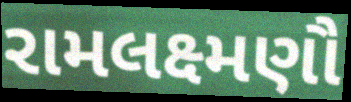
રામલક્ષ્મણૌ